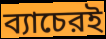
ব্যাচেরই